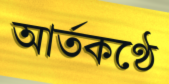
আর্তকণ্ঠে